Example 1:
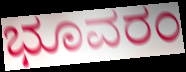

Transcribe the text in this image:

ಭೂವರಂ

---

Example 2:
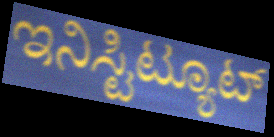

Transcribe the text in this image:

ಇನಿಸ್ಟಿಟ್ಯೂಟ್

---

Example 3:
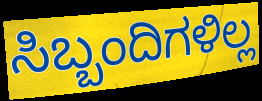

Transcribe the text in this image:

ಸಿಬ್ಬಂದಿಗಳಿಲ್ಲ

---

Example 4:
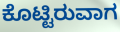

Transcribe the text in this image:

ಕೊಟ್ಟಿರುವಾಗ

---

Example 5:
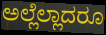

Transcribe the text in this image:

ಅಲ್ಲೆಲ್ಲಾದರೂ